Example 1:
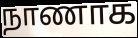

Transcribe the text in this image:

நாணாக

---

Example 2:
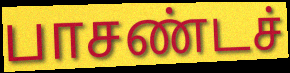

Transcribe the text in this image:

பாசண்டச்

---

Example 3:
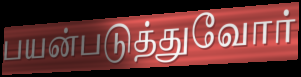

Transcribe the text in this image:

பயன்படுத்துவோர்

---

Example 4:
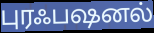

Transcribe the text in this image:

புரஃபஷனல்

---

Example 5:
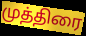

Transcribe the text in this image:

முத்திரை